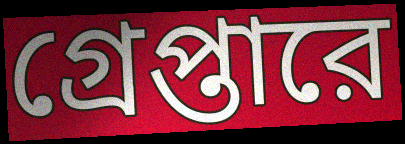
গ্রেপ্তারে